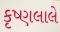
કૃષ્ણલાલે